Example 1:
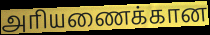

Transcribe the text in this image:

அரியணைக்கான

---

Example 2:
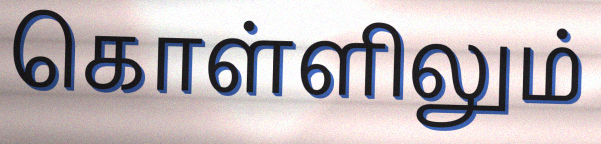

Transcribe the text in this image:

கொள்ளிலும்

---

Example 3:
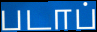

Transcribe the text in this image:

படாப்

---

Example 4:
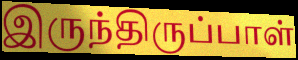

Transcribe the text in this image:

இருந்திருப்பாள்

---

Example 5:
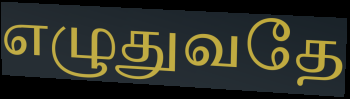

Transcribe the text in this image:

எழுதுவதே